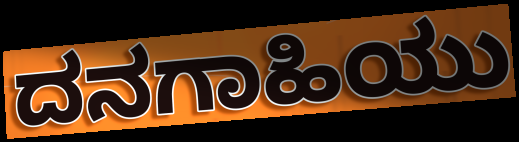
ದನಗಾಹಿಯು